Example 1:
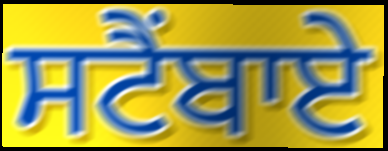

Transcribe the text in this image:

ਸਟੈਂਬਾਏ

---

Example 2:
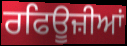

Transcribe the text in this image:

ਰਫਿਊਜ਼ੀਆਂ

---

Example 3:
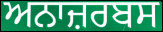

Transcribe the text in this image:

ਅਨਾਜ਼ਰਬਸ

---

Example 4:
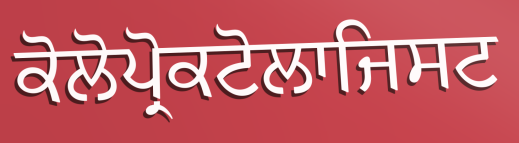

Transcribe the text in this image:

ਕੋਲੋਪ੍ਰੋਕਟੋਲਾਜਿਸਟ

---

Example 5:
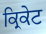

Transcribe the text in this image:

ਕ੍ਰਿਕੇਟ